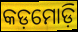
କଡ଼ମୋଡ଼ି